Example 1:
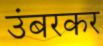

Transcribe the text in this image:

उंबरकर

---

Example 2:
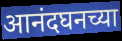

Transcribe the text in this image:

आनंदघनच्या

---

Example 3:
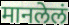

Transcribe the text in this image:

मानलेलं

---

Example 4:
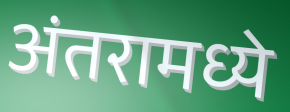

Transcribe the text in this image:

अंतरामध्ये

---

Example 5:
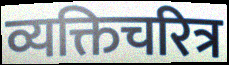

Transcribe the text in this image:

व्यक्तिचरित्र